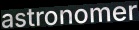
astronomer